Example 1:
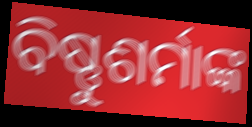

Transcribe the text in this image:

ବିଷ୍ଣୁଶର୍ମାଙ୍କ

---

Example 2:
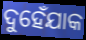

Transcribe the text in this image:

ଦୁହେଁଯାକ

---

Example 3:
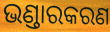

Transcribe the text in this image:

ଭଣ୍ଡାରକରଣ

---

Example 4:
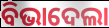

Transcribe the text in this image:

ବିଭାଦେଲା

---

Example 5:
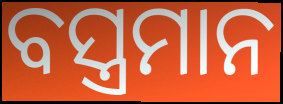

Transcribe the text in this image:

ବସ୍ତ୍ରମାନ